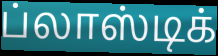
ப்லாஸ்டிக்